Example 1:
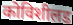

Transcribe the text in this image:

कोविशीलड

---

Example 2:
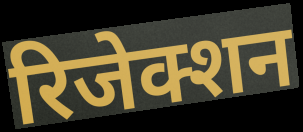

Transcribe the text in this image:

रिजेक्शन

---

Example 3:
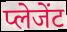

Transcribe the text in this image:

प्लेजेंट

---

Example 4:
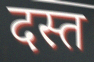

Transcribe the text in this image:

दस्त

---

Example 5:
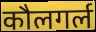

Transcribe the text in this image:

कौलगर्ल